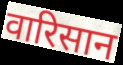
वारिसान